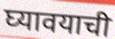
घ्यावयाची